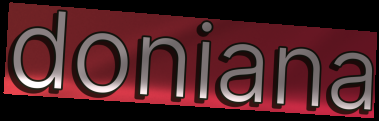
doniana